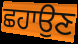
ਛਹਾਉਣ